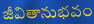
జీవితానుభవం